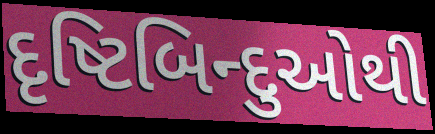
દૃષ્ટિબિન્દુઓથી